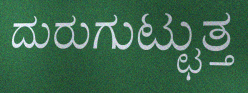
ದುರುಗುಟ್ಟುತ್ತ